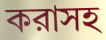
করাসহ